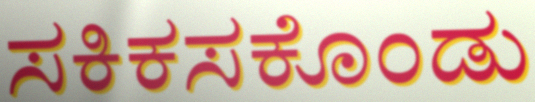
ಸಕಿಕಸಕೊಂಡು